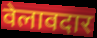
वेलावदार